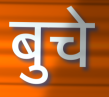
बुचे